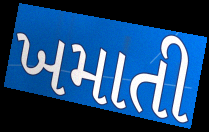
ખમાતી